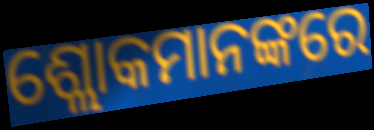
ଶ୍ଲୋକମାନଙ୍କରେ